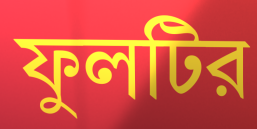
ফুলটির